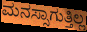
ಮನಸ್ಸಾಗುತ್ತಿಲ್ಲ